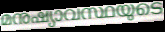
മനുഷ്യാവസ്ഥയുടെ